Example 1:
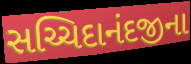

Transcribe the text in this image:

સચ્ચિદાનંદજીના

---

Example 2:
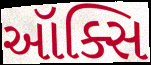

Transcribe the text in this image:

ઑક્સિ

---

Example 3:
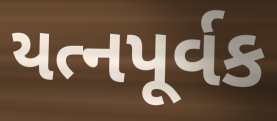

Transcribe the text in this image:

યત્નપૂર્વક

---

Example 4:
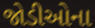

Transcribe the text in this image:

જોડીઓના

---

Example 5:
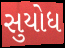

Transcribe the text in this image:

સુયોધ